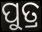
ପୁତ୍ର